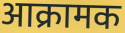
आक्रामक